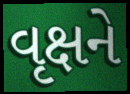
વૃક્ષને